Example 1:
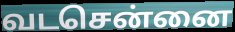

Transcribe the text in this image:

வடசென்னை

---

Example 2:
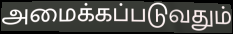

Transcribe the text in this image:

அமைக்கப்படுவதும்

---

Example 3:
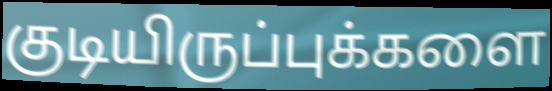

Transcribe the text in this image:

குடியிருப்புக்களை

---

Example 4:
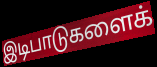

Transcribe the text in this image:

இடிபாடுகளைக்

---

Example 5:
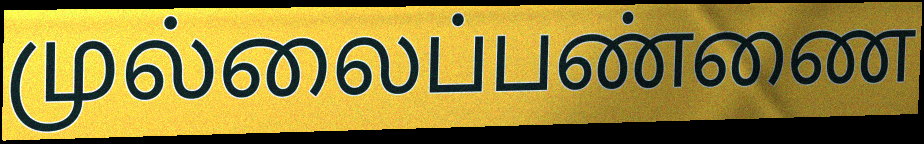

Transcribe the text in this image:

முல்லைப்பண்ணை